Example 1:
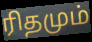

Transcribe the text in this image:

ரிதமும்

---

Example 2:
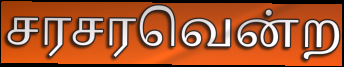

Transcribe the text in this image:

சரசரவென்ற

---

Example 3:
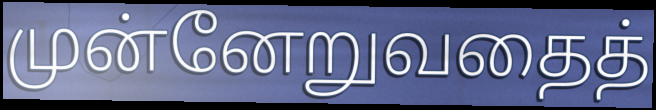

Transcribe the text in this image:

முன்னேறுவதைத்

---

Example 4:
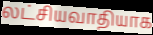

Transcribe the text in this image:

லட்சியவாதியாக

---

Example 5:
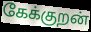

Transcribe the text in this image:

கேக்குறன்